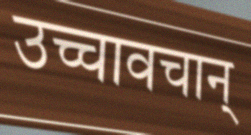
उच्चावचान्